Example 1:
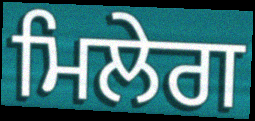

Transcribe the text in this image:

ਮਿਲੇਗ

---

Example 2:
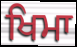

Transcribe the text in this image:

ਖਿਮਾ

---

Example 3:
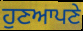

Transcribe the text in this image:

ਹੁਣਆਪਣੇ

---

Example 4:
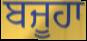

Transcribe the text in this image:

ਬਜੂਹਾ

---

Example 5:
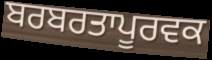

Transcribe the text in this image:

ਬਰਬਰਤਾਪੂਰਵਕ